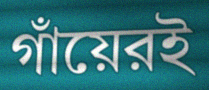
গাঁয়েরই